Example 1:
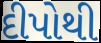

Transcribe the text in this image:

દીપોથી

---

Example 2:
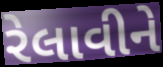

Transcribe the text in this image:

રેલાવીને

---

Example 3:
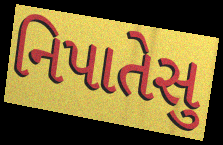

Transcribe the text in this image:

નિપાતેસુ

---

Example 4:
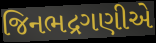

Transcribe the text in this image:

જિનભદ્રગણીએ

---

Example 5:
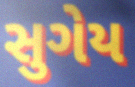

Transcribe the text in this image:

સુગેય